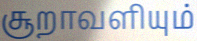
சூறாவளியும்